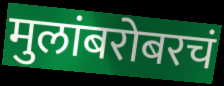
मुलांबरोबरचं